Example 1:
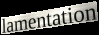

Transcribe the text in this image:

lamentation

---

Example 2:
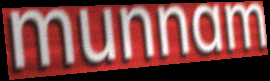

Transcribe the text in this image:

munnam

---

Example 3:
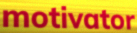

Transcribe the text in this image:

motivator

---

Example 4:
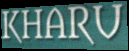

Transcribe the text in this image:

KHARU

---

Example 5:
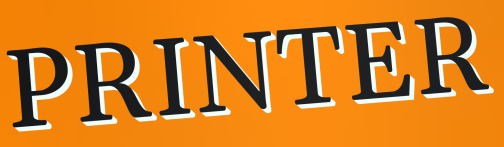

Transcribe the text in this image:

PRINTER